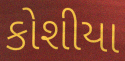
કોશીયા